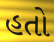
હતો